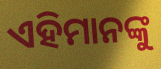
ଏହିମାନଙ୍କୁ